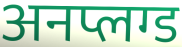
अनप्लग्ड